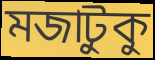
মজাটুকু